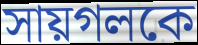
সায়গলকে